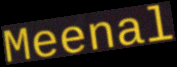
Meenal